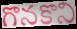
గొనకొని